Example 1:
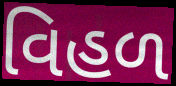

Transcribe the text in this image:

વિહળ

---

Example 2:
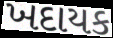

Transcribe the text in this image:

ખદાયક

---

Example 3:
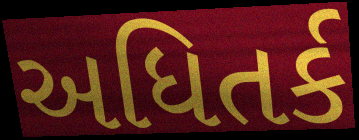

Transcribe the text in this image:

અધિતર્ક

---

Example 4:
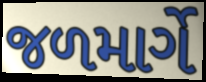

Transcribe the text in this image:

જળમાર્ગે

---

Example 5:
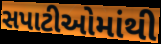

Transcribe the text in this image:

સપાટીઓમાંથી